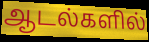
ஆடல்களில்